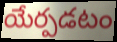
యేర్పడటం